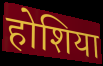
होशिया